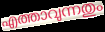
എത്താവുന്നതും